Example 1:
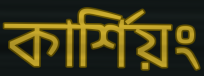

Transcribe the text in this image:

কার্শিয়ং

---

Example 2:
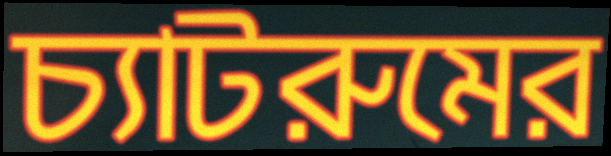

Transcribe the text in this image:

চ্যাটরুমের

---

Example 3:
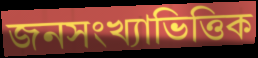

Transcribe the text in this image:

জনসংখ্যাভিত্তিক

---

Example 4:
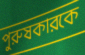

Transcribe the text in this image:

পুরুষকারকে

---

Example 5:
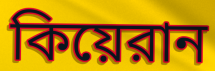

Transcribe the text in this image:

কিয়েরান